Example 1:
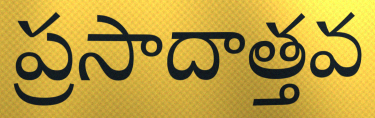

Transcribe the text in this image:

ప్రసాదాత్తవ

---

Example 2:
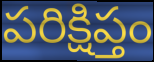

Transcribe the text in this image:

పరిక్షిప్తం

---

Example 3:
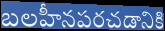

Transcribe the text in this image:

బలహీనపరచడానికి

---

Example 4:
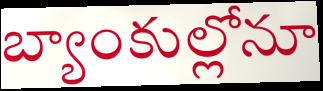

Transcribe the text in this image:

బ్యాంకుల్లోనూ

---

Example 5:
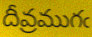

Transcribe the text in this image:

దీవ్రముగఁ